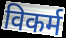
विकर्म